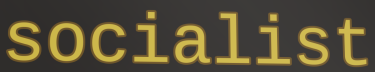
socialist